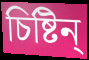
চিষ্টিন্